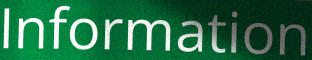
Information